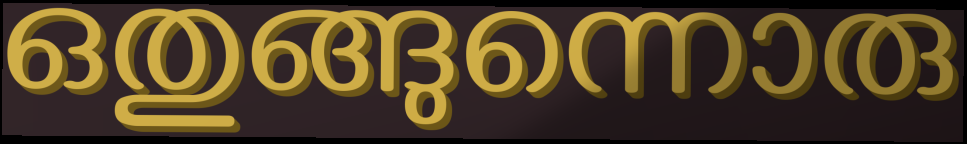
ഒതുങ്ങുന്നൊരു